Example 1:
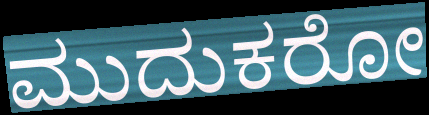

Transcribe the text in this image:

ಮುದುಕರೋ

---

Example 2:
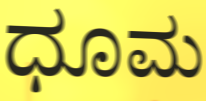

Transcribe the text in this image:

ಧೂಮ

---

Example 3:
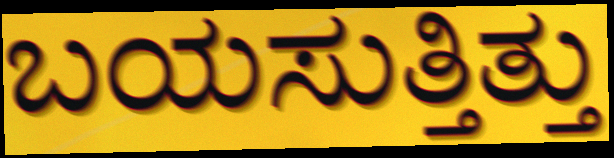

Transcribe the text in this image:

ಬಯಸುತ್ತಿತ್ತು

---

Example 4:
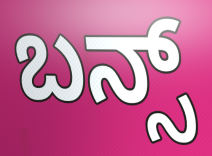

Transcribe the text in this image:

ಬನ್ಸ್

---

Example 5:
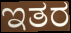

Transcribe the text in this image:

ಇತರ